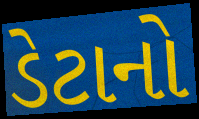
ડેટાનો